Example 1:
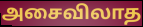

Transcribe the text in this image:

அசைவிலாத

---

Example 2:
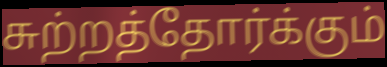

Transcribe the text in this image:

சுற்றத்தோர்க்கும்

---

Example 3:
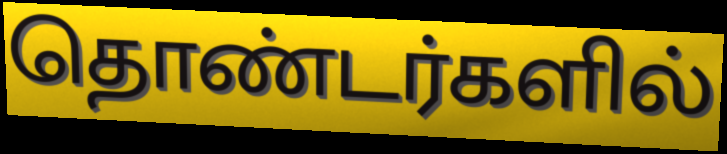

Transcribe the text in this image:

தொண்டர்களில்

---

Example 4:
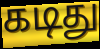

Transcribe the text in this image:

கடிது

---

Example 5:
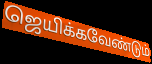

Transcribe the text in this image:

ஜெயிக்கவேண்டும்